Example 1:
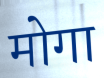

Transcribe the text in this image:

मोगा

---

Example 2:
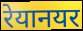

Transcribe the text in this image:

रेयानयर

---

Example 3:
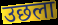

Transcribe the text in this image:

उछला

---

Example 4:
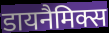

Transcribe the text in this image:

डायनैमिक्स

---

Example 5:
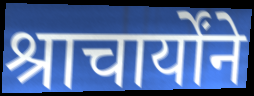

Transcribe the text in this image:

श्राचार्योंने